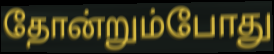
தோன்றும்போது